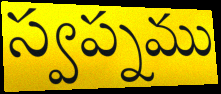
స్వప్నము